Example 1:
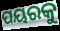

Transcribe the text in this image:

ପୟରକୁ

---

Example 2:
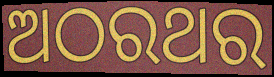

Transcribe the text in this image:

ଅଠରଥର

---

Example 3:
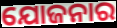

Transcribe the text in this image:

ଯୋଜନାର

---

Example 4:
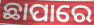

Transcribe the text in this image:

ଛାପାରେ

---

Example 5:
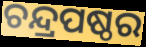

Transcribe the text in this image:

ଚନ୍ଦ୍ରପଷ୍ଠର